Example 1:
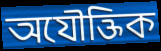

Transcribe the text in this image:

অযৌক্তিক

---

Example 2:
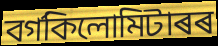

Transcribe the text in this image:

বৰ্গকিলোমিটাৰৰ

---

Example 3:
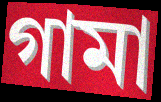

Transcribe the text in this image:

গামা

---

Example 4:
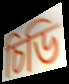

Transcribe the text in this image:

চিডি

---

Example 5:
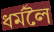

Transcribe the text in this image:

ধৰ্মলৈ